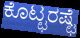
ಕೊಟ್ಟರಷ್ಟೆ